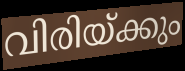
വിരിയ്ക്കും